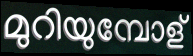
മുറിയുമ്പോള്